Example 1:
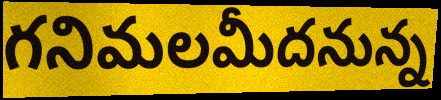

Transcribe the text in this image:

గనిమలమీదనున్న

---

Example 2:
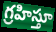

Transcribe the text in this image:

గ్రహిస్తూ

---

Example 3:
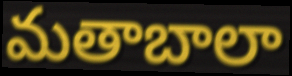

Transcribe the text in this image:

మతాబాలా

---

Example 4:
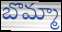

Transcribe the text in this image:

బొమ్మా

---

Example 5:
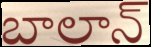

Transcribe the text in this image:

బాలాన్